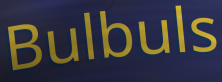
Bulbuls